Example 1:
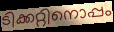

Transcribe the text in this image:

ടിക്കറ്റിനൊപ്പം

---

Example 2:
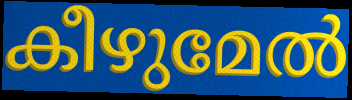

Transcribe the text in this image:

കീഴുമേൽ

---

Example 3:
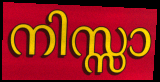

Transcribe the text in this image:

നിസ്സാ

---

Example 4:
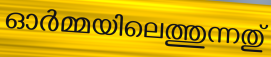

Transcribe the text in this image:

ഓർമ്മയിലെത്തുന്നതു്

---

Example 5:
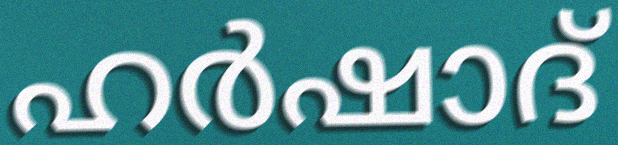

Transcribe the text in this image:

ഹർഷാദ്